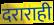
दराराही